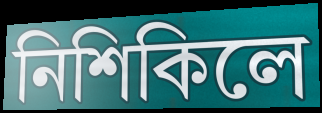
নিশিকিলে